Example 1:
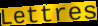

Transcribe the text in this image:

Lettres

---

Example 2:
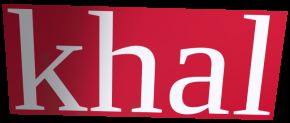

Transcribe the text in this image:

khal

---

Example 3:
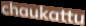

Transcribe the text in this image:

chaukattu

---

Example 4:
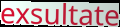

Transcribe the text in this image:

exsultate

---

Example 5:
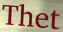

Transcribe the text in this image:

Thet